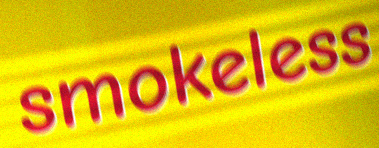
smokeless